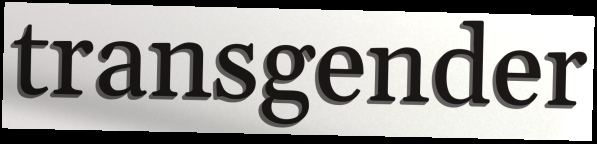
transgender